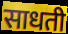
साधती